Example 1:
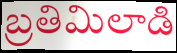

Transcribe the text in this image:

బ్రతిమిలాడి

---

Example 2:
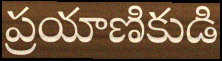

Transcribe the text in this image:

ప్రయాణికుడి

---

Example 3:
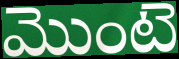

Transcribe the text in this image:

మొంటె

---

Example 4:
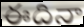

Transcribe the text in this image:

ఈదినా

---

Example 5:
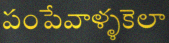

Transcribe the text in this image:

పంపేవాళ్ళకెలా